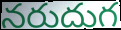
నరుదుగ